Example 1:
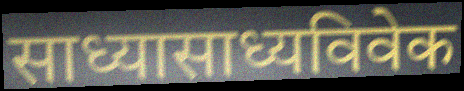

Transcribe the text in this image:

साध्यासाध्यविवेक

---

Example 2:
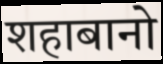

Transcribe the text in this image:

शहाबानो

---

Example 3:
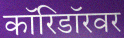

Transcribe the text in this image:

कॉरिडॉरवर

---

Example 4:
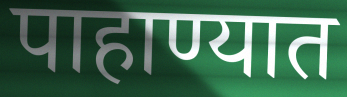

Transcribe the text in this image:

पाहाण्यात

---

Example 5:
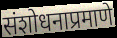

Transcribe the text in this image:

संशोधनाप्रमाणे